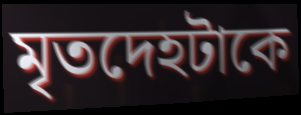
মৃতদেহটাকে